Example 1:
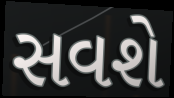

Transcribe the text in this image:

સવશે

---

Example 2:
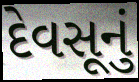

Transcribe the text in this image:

દેવસૂનું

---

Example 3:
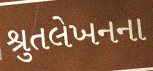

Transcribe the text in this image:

શ્રુતલેખનના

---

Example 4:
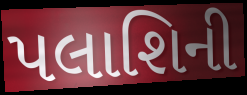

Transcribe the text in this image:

પલાશિની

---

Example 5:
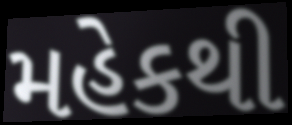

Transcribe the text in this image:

મહેકથી